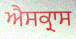
ਐਸਕ੍ਰਾਸ